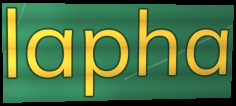
lapha